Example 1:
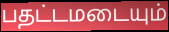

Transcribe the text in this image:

பதட்டமடையும்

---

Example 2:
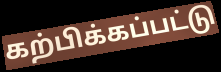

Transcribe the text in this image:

கற்பிக்கப்பட்டு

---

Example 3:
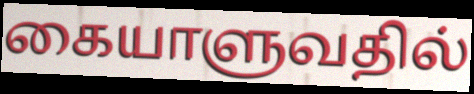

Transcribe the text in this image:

கையாளுவதில்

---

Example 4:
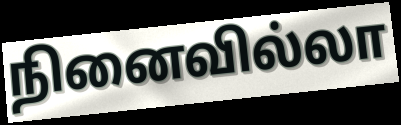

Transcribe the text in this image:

நினைவில்லா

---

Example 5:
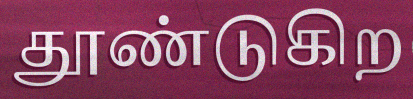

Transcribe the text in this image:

தூண்டுகிற